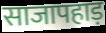
साजापहाड़